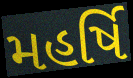
મહર્ષિ